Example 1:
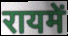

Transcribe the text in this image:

रायमें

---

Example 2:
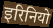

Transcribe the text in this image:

इरिनियो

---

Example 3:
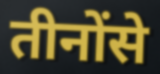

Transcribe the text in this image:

तीनोंसे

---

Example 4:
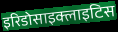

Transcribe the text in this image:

इरिडोसाइक्लाइटिस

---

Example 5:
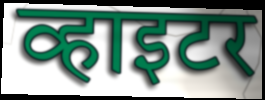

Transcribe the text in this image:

व्हाइटर